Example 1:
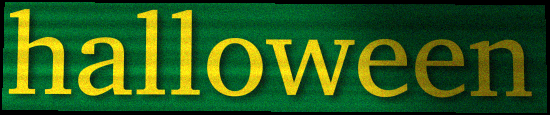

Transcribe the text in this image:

halloween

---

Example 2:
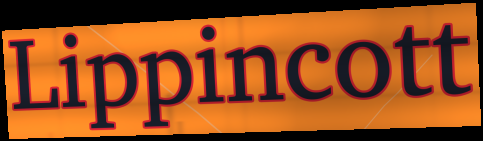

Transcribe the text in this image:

Lippincott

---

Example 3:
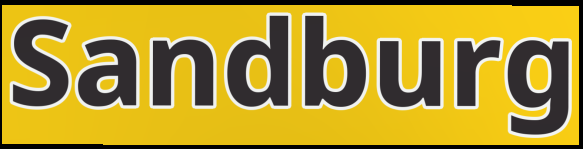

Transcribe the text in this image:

Sandburg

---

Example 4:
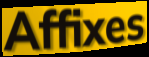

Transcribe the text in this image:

Affixes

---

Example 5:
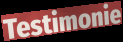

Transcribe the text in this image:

Testimonie